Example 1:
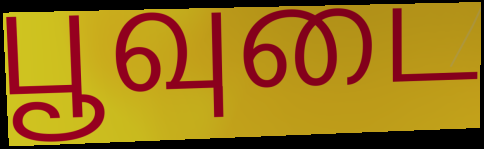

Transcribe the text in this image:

பூவுடை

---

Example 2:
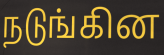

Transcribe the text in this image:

நடுங்கின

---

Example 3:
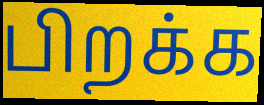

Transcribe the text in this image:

பிறக்க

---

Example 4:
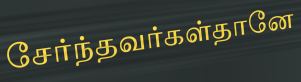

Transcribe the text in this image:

சேர்ந்தவர்கள்தானே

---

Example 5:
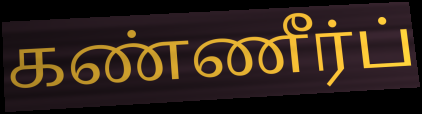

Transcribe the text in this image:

கண்ணீர்ப்